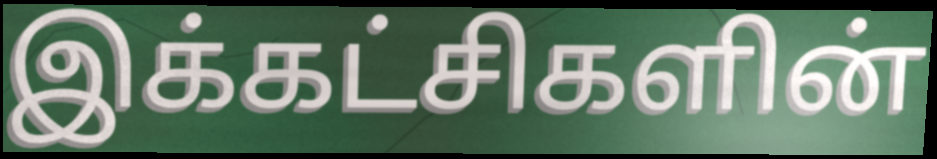
இக்கட்சிகளின்